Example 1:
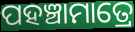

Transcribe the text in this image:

ପହଞ୍ଚାମାତ୍ରେ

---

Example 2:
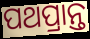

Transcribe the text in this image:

ପଥପ୍ରାନ୍ତ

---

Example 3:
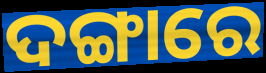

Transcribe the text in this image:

ଦଙ୍ଗାରେ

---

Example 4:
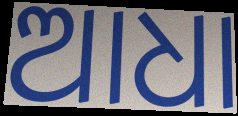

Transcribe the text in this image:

ଆଧା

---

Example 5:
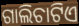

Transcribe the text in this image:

ଗାଲିଚାଟିଏ